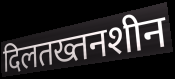
दिलतख्तनशीन